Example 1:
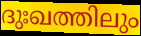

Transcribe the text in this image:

ദുഃഖത്തിലും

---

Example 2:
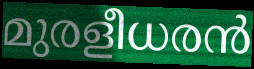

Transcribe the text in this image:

മുരളീധരൻ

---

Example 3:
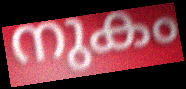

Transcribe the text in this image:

നുകം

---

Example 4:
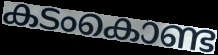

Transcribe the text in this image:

കടംകൊണ്ട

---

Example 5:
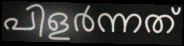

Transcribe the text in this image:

പിളർന്നത്